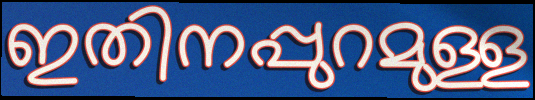
ഇതിനപ്പുറമുള്ള